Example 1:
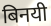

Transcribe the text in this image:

बिनयी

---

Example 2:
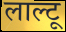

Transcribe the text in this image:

लाल्‍टू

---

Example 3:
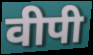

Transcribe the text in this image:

वीपी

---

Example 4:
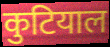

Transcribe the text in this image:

कुटियाल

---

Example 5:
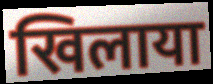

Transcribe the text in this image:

खिलाया